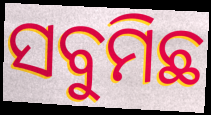
ସବୁମିଛ